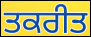
ਤਕਰੀਤ